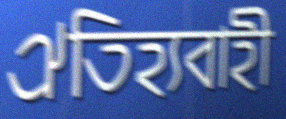
ঐতিহ্যবাহী